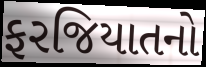
ફરજિયાતનો